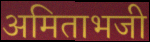
अमिताभजी